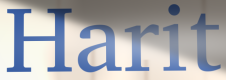
Harit